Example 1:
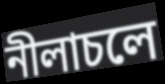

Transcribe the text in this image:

নীলাচলে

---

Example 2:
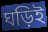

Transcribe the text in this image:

ঘড়িই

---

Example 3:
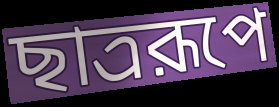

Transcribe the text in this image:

ছাত্ররূপে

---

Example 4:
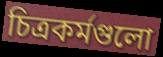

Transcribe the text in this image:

চিত্রকর্মগুলো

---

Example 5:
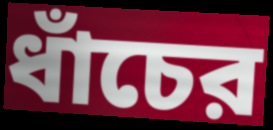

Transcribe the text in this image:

ধাঁচের